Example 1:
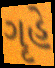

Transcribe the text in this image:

ગૃહે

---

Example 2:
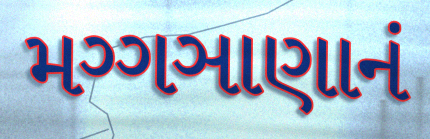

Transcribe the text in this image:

મગ્ગઞાણાનં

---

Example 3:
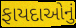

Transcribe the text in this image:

ફાયદાઓનું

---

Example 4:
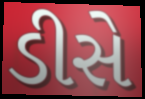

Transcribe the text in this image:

ડીસે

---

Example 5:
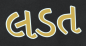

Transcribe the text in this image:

લડત